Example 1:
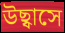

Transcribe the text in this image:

উছ্বাসে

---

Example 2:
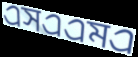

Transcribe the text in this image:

এসএএমএ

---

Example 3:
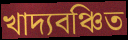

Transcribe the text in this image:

খাদ্যবঞ্চিত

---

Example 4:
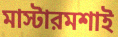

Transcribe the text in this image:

মাস্টারমশাই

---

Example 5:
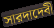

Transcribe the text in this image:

সারদাদেবী